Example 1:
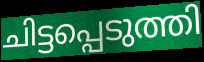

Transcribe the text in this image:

ചിട്ടപ്പെടുത്തി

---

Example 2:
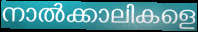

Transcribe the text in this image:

നാൽക്കാലികളെ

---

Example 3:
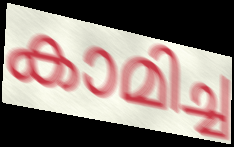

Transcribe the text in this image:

കാമിച്ച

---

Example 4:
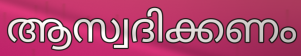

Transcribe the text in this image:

ആസ്വദിക്കണം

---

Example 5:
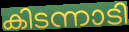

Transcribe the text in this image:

കിടന്നാടി